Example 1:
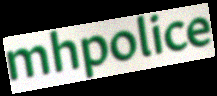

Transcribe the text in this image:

mhpolice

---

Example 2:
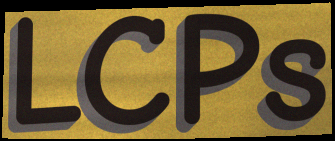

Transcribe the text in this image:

LCPs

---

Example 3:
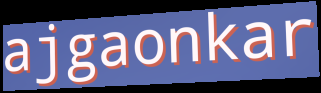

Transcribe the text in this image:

ajgaonkar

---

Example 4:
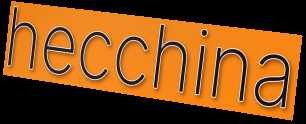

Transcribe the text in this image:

hecchina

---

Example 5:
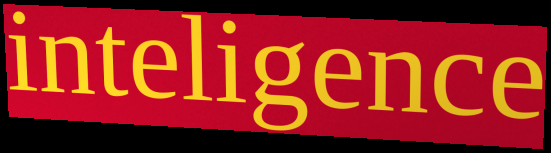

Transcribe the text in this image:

inteligence